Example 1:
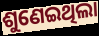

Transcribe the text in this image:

ଶୁଣେଇଥିଲା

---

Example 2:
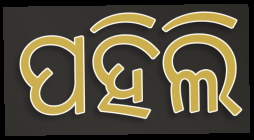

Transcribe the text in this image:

ପହିଲି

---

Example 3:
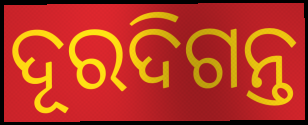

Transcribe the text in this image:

ଦୂରଦିଗନ୍ତ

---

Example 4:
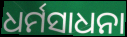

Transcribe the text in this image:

ଧର୍ମସାଧନା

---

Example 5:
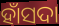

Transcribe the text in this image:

ହାଁସଦା